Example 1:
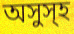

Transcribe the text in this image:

অসুস্হ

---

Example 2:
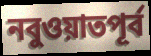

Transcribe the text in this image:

নবুওয়াতপূর্ব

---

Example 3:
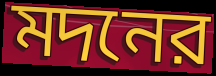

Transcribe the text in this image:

মদনের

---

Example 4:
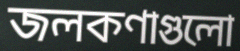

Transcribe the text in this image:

জলকণাগুলো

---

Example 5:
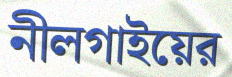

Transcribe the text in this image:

নীলগাইয়ের